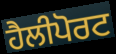
ਹੈਲੀਪੋਰਟ